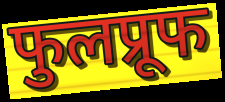
फुलप्रूफ